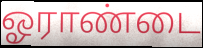
ஓராண்டை